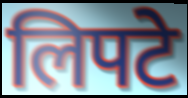
लिपटे